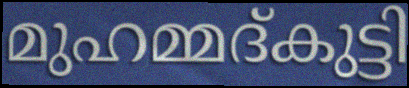
മുഹമ്മദ്കുട്ടി